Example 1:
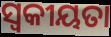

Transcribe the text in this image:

ସ୍ଵକୀୟତା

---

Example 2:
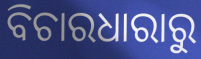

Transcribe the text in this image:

ବିଚାରଧାରାରୁ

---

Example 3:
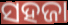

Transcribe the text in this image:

ସହଜା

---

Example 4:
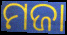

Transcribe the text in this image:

ମଜା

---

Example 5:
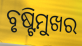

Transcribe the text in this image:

ବୃଷ୍ଟିମୁଖର